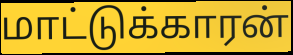
மாட்டுக்காரன்